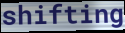
shifting